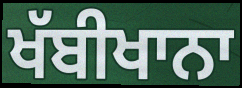
ਖੱਬੀਖਾਨਾ